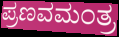
ಪ್ರಣವಮಂತ್ರ